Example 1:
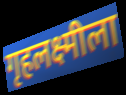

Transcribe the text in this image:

गृहलक्ष्मीला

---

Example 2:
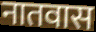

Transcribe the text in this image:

नातवास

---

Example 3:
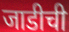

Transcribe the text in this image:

जाडीची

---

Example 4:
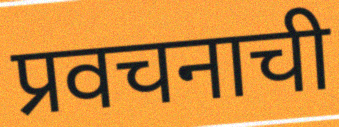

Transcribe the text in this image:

प्रवचनाची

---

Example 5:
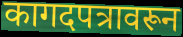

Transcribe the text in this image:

कागदपत्रावरून